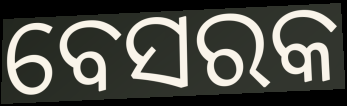
ବେସରକ